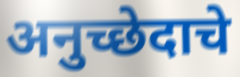
अनुच्छेदाचे